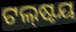
ଟଲ୍‌ଷ୍ଟୟ